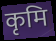
कृमि